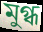
মুগ্ধ